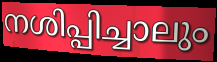
നശിപ്പിച്ചാലും